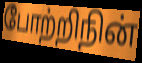
போற்றிநின்